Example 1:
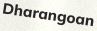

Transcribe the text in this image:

Dharangoan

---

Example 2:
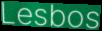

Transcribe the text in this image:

Lesbos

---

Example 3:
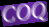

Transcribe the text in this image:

COQ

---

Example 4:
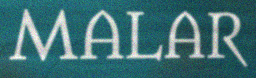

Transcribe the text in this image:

MALAR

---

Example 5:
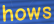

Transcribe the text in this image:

hows